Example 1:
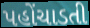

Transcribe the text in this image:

પહોંચાડતી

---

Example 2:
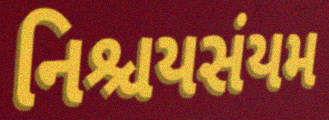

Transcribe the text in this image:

નિશ્ચયસંયમ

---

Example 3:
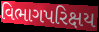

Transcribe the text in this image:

વિભાગપરિક્ષય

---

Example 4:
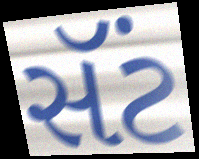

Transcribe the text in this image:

સૅંટ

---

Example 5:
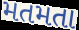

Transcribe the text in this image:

મતમતા